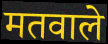
मतवाले